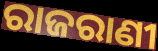
ରାଜରାଣୀ